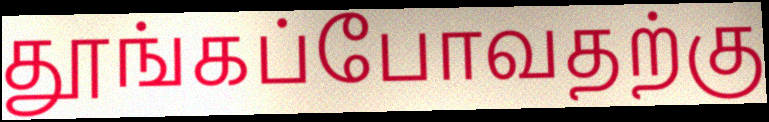
தூங்கப்போவதற்கு